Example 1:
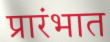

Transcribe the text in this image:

प्रारंभात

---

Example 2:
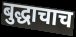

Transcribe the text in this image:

बुद्धाचाच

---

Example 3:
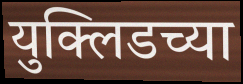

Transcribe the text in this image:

युक्लिडच्या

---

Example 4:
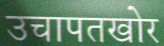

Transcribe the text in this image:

उचापतखोर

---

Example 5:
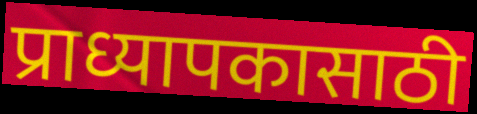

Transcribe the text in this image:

प्राध्यापकासाठी